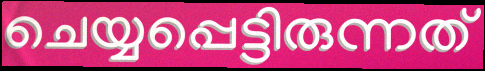
ചെയ്യപ്പെട്ടിരുന്നത്